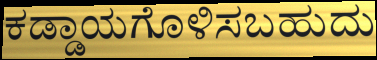
ಕಡ್ಡಾಯಗೊಳಿಸಬಹುದು